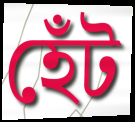
হেঁট